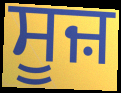
ਸੂਜ਼